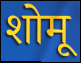
शोमू